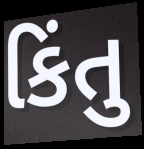
કિંતુ